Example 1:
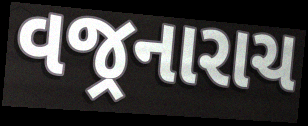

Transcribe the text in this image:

વજ્રનારાચ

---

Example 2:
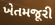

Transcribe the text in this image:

ખેતમજૂરી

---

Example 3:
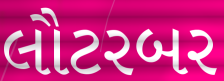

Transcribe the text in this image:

લૌટરબર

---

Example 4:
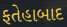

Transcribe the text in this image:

ફતેહાબાદ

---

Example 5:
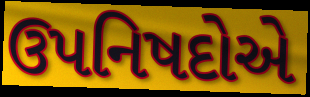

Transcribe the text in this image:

ઉપનિષદોએ